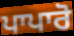
ਪਾਪਾਰੋ